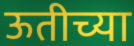
ऊतीच्या